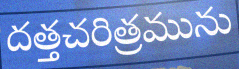
దత్తచరిత్రమును